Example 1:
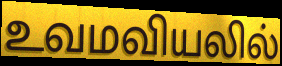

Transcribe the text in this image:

உவமவியலில்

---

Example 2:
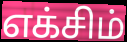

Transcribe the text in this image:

எக்சிம்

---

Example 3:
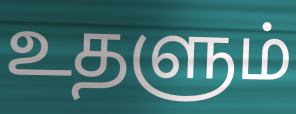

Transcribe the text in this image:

உதளும்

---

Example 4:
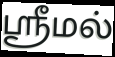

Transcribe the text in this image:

ஶ்ரீமல்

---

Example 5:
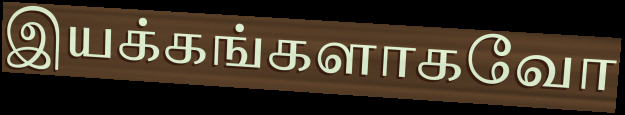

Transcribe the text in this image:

இயக்கங்களாகவோ